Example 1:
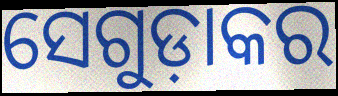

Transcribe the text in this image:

ସେଗୁଡ଼ାକର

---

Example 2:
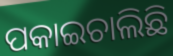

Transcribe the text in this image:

ପକାଇଚାଲିଛି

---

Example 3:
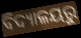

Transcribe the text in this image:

ବିଦ୍ୟାଳୟରୁ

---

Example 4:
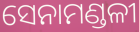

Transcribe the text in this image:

ସେନାମଣ୍ଡଳୀ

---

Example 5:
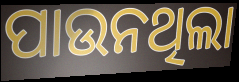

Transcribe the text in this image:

ପାଉନଥିଲା